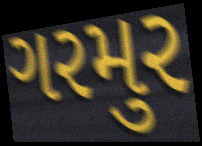
ગરમુર